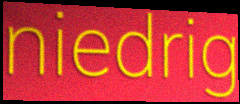
niedrig